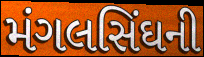
મંગલસિંઘની